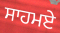
ਸਾਹਮਏ